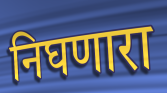
निघणारा